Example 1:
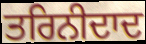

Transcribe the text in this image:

ਤਰਿਨੀਦਾਦ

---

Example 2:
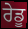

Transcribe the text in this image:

ਰੇਡੂ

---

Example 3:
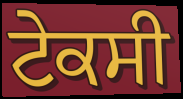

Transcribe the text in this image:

ਟੇਕਸੀ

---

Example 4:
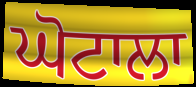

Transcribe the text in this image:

ਘੋਟਾਲਾ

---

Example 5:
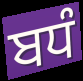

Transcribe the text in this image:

ਬਧੰ